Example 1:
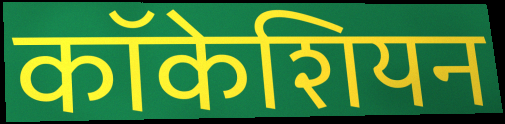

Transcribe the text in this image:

कॉकेशियन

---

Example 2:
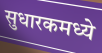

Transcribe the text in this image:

सुधारकमध्ये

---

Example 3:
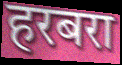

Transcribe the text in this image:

हरबरा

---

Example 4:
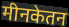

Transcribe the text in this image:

मीनकेतन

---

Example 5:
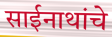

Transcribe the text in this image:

साईनाथांचे